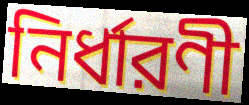
নির্ধারণী